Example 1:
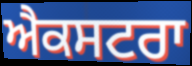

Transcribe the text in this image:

ਐਕਸਟਰਾ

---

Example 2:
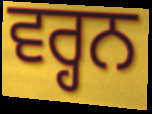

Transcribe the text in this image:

ਵਰ੍ਹਨ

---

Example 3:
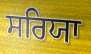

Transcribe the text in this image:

ਸਰਿਯਾ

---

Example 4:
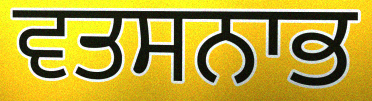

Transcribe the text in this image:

ਵਤਸਨਾਭ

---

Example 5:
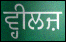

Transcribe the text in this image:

ਵ੍ਹੀਲਜ਼